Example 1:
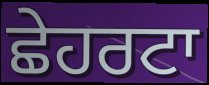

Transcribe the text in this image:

ਛੇਹਰਟਾ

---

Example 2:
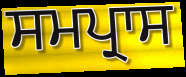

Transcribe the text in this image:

ਸਮਪ੍ਰਾਸ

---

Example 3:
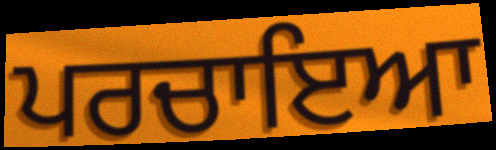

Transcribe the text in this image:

ਪਰਚਾਇਆ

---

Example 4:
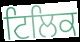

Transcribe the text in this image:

ਟਿਲਿਕ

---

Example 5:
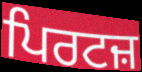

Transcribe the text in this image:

ਪਿਰਟਜ਼